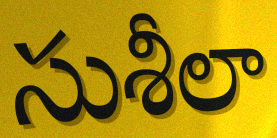
సుశీలా